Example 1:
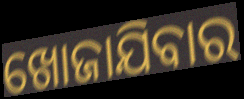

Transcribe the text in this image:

ଖୋଜାଯିବାର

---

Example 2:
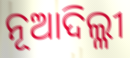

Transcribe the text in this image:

ନୂଆଦିଲ୍ଳୀ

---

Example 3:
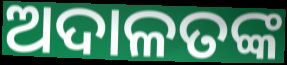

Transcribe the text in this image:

ଅଦାଳତଙ୍କ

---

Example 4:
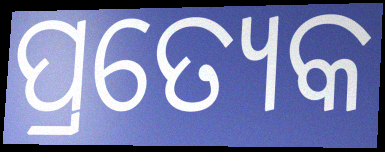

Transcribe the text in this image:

ପ୍ରତ୍ଯେକ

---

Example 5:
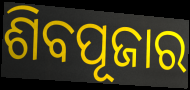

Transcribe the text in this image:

ଶିବପୂଜାର